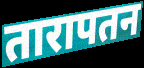
तारापतन